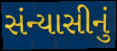
સંન્યાસીનું